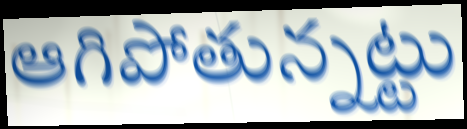
ఆగిపోతున్నట్టు